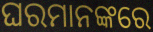
ଘରମାନଙ୍କରେ